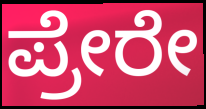
ಪ್ರೇರೇ